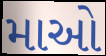
માઓ